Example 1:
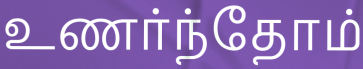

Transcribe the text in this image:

உணர்ந்தோம்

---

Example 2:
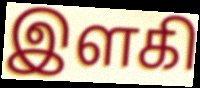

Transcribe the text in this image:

இளகி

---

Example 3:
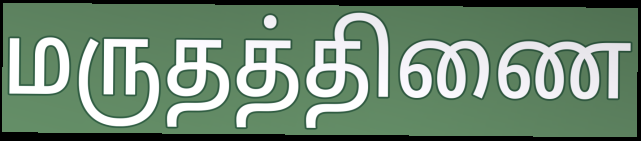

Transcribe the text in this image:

மருதத்திணை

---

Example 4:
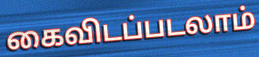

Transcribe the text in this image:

கைவிடப்படலாம்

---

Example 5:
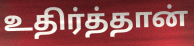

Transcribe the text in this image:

உதிர்த்தான்